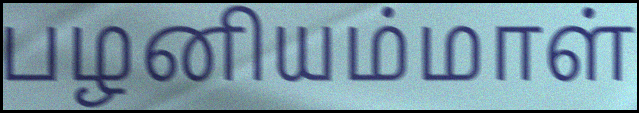
பழனியம்மாள்